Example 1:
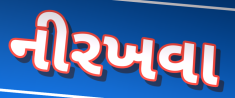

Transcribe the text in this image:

નીરખવા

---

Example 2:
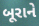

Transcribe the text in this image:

બૂરાને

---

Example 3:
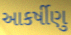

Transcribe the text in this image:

આકર્ષીણુ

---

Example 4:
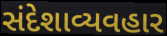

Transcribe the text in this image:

સંદેશાવ્યવહાર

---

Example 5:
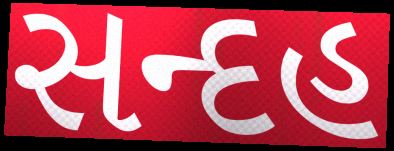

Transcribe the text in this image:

સન્દહ